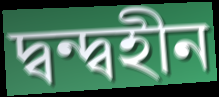
দ্বন্দ্বহীন